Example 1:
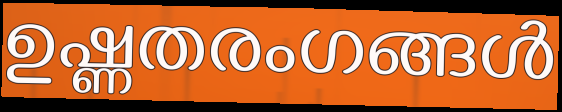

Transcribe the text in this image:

ഉഷ്ണതരംഗങ്ങൾ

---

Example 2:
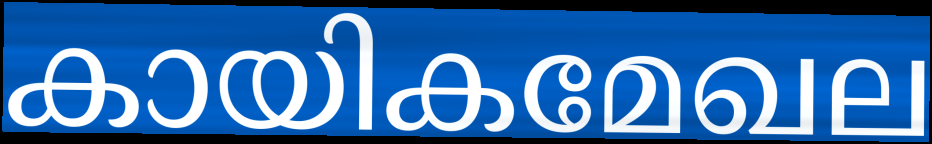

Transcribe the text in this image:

കായികമേഖല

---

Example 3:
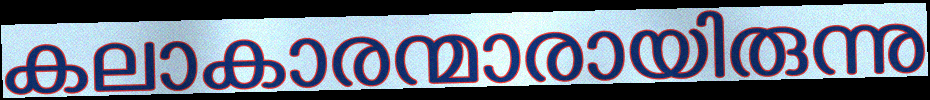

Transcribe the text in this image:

കലാകാരന്മാരായിരുന്നു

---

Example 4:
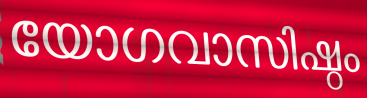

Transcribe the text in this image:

യോഗവാസിഷ്ഠം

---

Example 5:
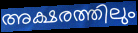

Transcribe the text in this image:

അക്ഷരത്തിലും